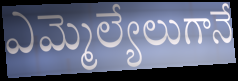
ఎమ్మెల్యేలుగానే